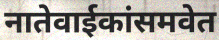
नातेवाईकांसमवेत